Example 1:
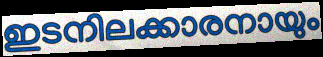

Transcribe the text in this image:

ഇടനിലക്കാരനായും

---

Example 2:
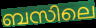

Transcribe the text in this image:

ബസിലെ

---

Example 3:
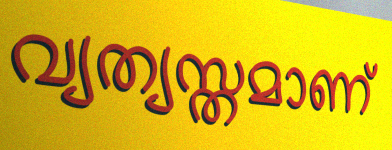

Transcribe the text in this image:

വ്യത്യസ്തമാണ്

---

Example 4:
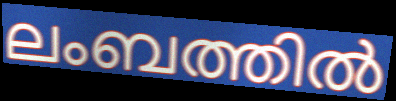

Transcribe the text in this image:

ലംബത്തിൽ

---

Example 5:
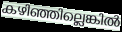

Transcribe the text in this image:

കഴിഞ്ഞില്ലെങ്കിൽ